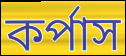
কর্পাস